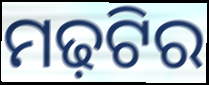
ମଢ଼ଟିର